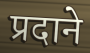
प्रदाने